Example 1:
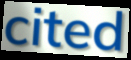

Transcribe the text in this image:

cited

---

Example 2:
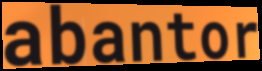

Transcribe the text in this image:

abantor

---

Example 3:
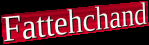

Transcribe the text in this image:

Fattehchand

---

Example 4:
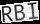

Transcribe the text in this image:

RBI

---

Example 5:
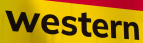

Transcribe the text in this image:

western